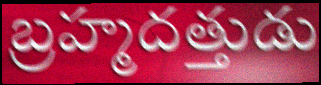
బ్రహ్మదత్తుడు